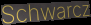
Schwarcz